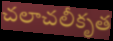
చలాచలీకృత